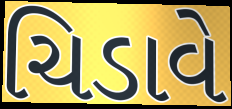
ચિડાવે